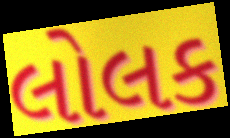
લોલક